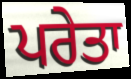
ਪਰੇਤਾ